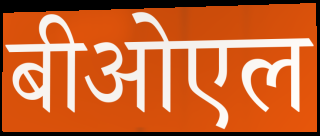
बीओएल